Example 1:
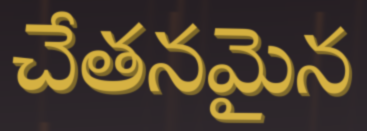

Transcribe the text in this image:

చేతనమైన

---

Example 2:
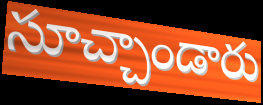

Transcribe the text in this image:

సూచ్చాండారు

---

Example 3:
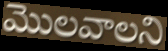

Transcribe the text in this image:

మొలవాలని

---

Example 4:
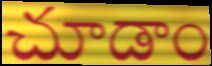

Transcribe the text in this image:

చూడాం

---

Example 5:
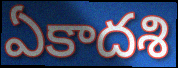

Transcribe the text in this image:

ఏకాదశి